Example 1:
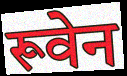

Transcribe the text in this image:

रूवेन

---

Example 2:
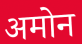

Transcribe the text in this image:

अमोन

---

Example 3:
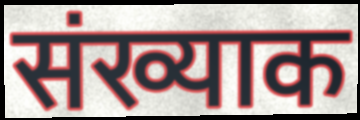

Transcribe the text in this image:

संख्याक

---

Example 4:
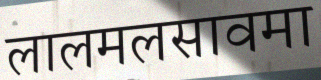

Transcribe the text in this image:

लालमलसावमा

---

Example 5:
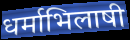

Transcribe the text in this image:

धर्माभिलाषी